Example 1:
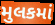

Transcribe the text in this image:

મુલકમાં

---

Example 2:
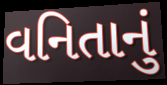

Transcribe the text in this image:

વનિતાનું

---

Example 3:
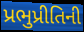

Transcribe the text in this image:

પ્રભુપ્રીતિની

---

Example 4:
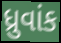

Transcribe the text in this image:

ધ્રુવાંક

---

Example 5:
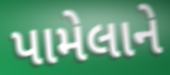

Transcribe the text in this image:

પામેલાને